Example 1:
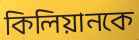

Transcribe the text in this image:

কিলিয়ানকে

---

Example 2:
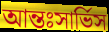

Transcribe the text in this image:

আন্তঃসার্ভিস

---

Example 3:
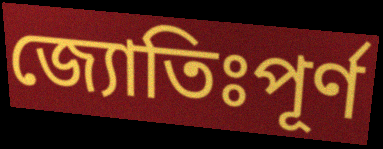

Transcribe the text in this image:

জ্যোতিঃপূর্ণ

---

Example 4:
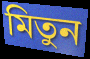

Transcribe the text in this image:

মিতুন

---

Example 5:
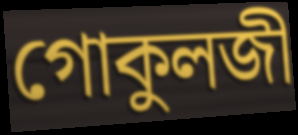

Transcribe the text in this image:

গোকুলজী